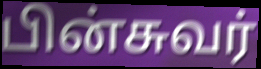
பின்சுவர்